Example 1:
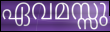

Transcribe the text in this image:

ഏവമസ്സു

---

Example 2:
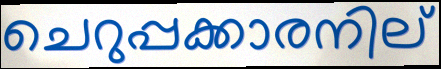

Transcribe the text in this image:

ചെറുപ്പക്കാരനില്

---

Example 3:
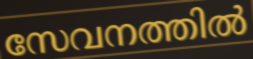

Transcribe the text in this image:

സേവനത്തിൽ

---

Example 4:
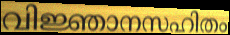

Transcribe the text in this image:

വിജ്ഞാനസഹിതം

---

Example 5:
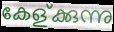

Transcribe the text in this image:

കേള്ക്കുന്നു